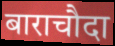
बाराचौदा